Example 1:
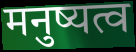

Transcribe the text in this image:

मनुष्यत्‍व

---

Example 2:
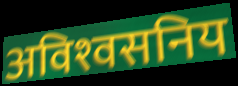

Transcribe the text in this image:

अविश्वसनिय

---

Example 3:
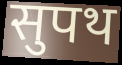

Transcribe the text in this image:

सुपथ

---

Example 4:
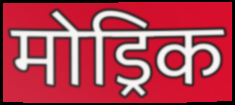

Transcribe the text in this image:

मोड्रिक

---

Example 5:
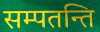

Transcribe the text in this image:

सम्पतन्ति